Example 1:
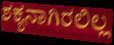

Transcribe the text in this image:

ಶಕ್ಯನಾಗಿರಲಿಲ್ಲ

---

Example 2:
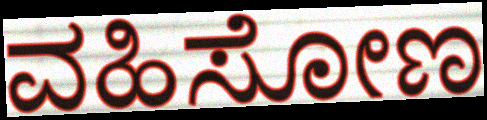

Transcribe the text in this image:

ವಹಿಸೋಣ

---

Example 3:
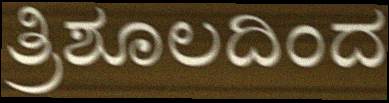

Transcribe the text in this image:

ತ್ರಿಶೂಲದಿಂದ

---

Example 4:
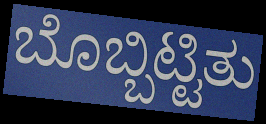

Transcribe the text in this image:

ಬೊಬ್ಬಿಟ್ಟಿತು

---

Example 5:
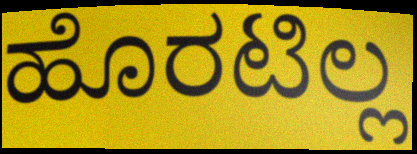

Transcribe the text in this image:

ಹೊರಟಿಲ್ಲ